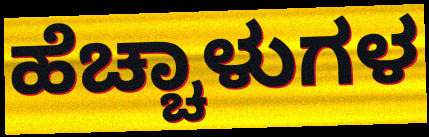
ಹೆಚ್ಚಾಳುಗಳ